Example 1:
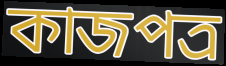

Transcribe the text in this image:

কাজপত্র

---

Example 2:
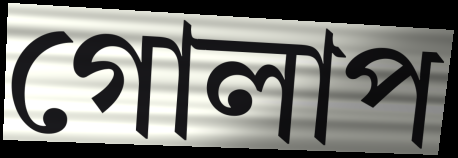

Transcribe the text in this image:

গোলাপ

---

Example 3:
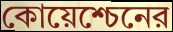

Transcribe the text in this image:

কোয়েশ্চেনের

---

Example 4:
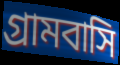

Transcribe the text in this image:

গ্রামবাসি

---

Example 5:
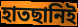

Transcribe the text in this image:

হাতছানিই